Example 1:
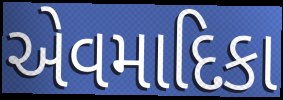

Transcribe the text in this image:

એવમાદિકા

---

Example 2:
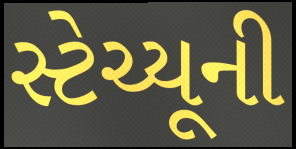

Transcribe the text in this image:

સ્ટેચ્યૂની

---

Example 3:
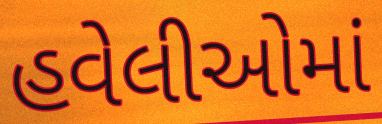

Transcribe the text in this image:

હવેલીઓમાં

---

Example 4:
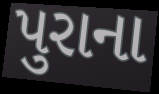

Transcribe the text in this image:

પુરાના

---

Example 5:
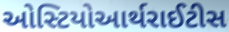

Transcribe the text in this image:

ઓસ્ટિયોઆર્થરાઈટીસ